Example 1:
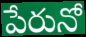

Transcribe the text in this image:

పేరునో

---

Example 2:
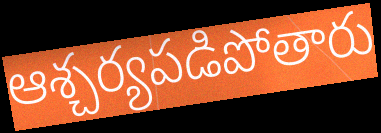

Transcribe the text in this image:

ఆశ్చర్యపడిపోతారు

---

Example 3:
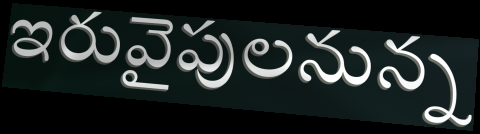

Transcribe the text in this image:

ఇరువైపులనున్న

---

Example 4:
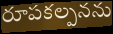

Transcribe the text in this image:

రూపకల్పనను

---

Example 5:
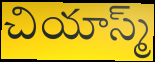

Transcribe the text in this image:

చియాస్మ్